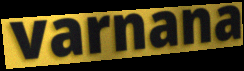
varnana